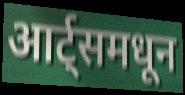
आर्ट्समधून